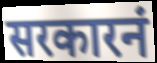
सरकारनं